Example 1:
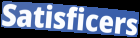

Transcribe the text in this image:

Satisficers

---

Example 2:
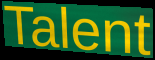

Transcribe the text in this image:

Talent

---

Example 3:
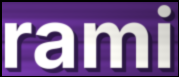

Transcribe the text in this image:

rami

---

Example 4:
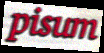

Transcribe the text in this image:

pisum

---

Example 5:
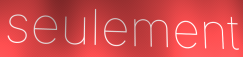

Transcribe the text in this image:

seulement